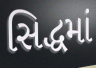
સિદ્ધમાં